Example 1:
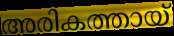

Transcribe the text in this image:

അരികത്തായ്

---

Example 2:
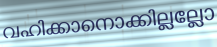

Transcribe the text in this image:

വഹിക്കാനൊക്കില്ലല്ലോ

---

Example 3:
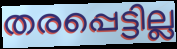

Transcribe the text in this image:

തരപ്പെട്ടില്ല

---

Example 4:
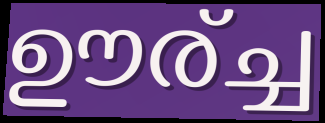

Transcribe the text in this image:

ഊര്ച്ച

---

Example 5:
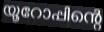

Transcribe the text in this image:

യൂറോപ്പിന്റെ